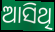
ଆସିଥି